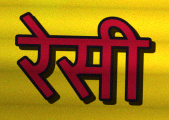
रेसी